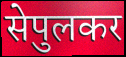
सेपुलकर